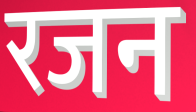
रजन